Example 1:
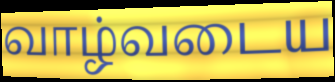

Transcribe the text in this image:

வாழ்வடைய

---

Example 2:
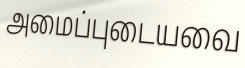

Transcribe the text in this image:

அமைப்புடையவை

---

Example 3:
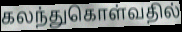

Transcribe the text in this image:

கலந்துகொள்வதில்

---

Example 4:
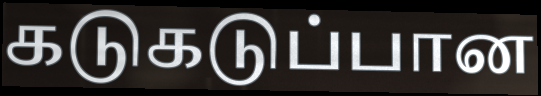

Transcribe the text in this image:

கடுகடுப்பான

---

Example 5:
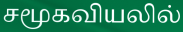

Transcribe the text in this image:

சமூகவியலில்